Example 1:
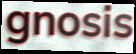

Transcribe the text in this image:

gnosis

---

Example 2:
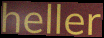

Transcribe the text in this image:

heller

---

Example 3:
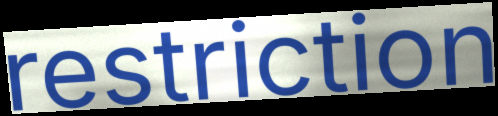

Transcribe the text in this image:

restriction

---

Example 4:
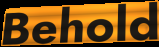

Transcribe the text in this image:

Behold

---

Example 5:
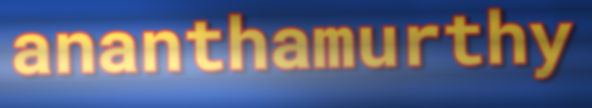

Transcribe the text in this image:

ananthamurthy